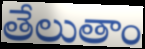
తేలుతాం